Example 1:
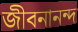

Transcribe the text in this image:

জীবনানন্দ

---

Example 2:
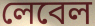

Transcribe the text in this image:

লেবেল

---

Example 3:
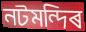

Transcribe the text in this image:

নটমন্দিৰ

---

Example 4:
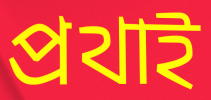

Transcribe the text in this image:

প্ৰথাই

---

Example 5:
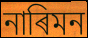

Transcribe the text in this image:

নাৰিমন